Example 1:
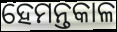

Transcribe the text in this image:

ହେମନ୍ତକାଳ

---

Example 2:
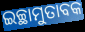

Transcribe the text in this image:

ଇଚ୍ଛାମୁତାବକ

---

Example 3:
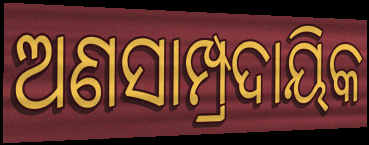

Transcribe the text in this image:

ଅଣସାମ୍ପ୍ରଦାୟିକ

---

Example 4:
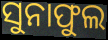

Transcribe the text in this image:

ସୁନାଫୁଲ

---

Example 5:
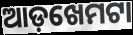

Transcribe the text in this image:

ଆଡ଼ଖେମଟା